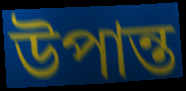
উপান্ত